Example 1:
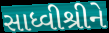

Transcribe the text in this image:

સાધ્વીશ્રીને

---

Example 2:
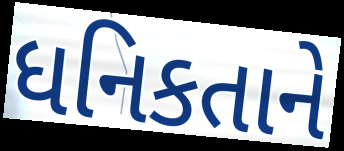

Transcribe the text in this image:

ધનિકતાને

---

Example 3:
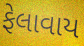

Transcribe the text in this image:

ફેલાવાય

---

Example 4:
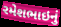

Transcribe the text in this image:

રમેશભાઇનું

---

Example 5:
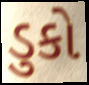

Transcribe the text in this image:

ડુકો